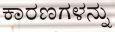
ಕಾರಣಗಳನ್ನು